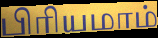
பிரியமாம்